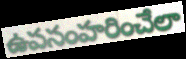
ఉపసంహరించేలా